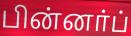
பின்னர்ப்